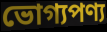
ভোগ্যপণ্য